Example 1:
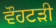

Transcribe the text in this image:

ਵੌਹਟੜੀ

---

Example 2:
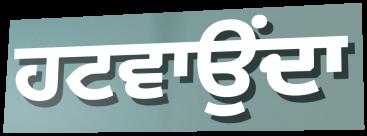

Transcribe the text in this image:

ਹਟਵਾਉਂਦਾ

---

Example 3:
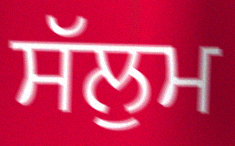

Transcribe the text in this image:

ਸੱਲੁਮ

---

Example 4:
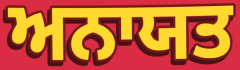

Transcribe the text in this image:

ਅਨਾਯਤ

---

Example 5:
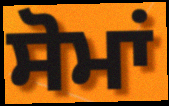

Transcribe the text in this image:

ਸੋਮਾਂ